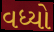
વધ્યો